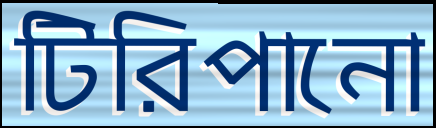
টিরিপানো